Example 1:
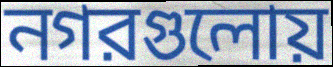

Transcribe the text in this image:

নগরগুলোয়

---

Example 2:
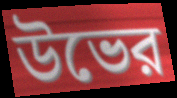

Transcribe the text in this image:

উভের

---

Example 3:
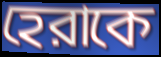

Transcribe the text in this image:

হেরাকে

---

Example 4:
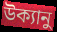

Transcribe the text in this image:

উক্যানু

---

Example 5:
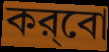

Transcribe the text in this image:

কর্‌বো